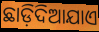
ଛାଡ଼ିଦିଆଯାଏ